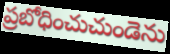
ప్రబోధించుచుండెను